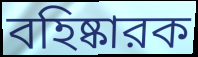
বহিষ্কারক